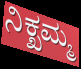
ನಿಕ್ಖಮ್ಮ